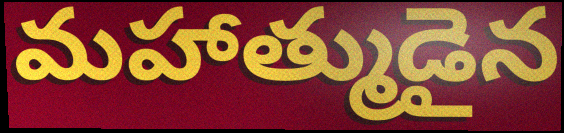
మహాత్ముడైన